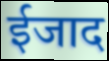
ईजाद